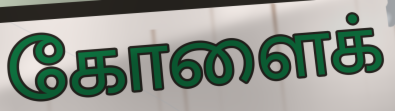
கோளைக்